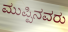
ಮುಪ್ಪಿನವರು